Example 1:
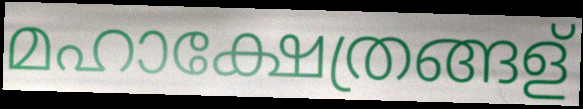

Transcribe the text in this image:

മഹാക്ഷേത്രങ്ങള്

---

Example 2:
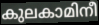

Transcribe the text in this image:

കുലകാമിനീ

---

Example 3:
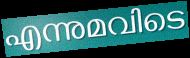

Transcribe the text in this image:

എന്നുമവിടെ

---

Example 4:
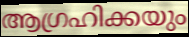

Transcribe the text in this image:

ആഗ്രഹിക്കയും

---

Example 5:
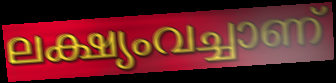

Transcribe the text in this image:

ലക്ഷ്യംവച്ചാണ്